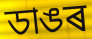
ডাঙৰ